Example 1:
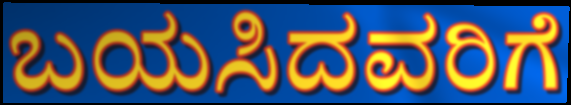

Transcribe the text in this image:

ಬಯಸಿದವರಿಗೆ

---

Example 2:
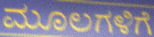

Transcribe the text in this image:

ಮೂಲಗಳಿಗೆ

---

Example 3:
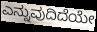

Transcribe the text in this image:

ಎನ್ನುವುದಿದೆಯೇ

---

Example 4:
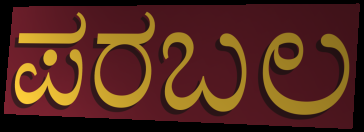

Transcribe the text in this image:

ಪರಬಲ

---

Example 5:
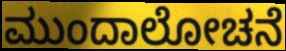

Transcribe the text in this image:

ಮುಂದಾಲೋಚನೆ